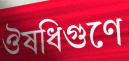
ঔষধিগুণে